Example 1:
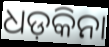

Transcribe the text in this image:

ଧଡ଼କିନା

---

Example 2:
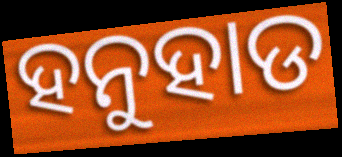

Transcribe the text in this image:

ହନୁହାଡ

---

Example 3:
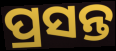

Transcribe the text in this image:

ପ୍ରସନ୍ତ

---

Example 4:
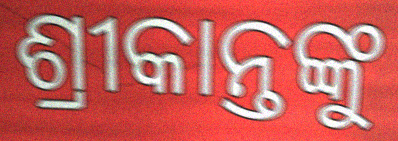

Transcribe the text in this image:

ଶ୍ରୀକାନ୍ତଙ୍କୁ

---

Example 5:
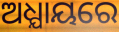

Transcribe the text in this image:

ଅଧ୍ଯାୟରେ